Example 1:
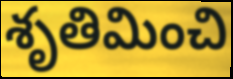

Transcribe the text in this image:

శృతిమించి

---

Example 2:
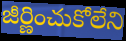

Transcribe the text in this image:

జీర్ణించుకోలేని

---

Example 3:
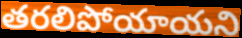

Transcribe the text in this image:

తరలిపోయాయని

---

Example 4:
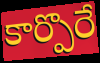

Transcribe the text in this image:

కార్పొరే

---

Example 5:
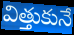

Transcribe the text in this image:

విత్తుకునే